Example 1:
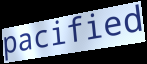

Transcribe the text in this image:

pacified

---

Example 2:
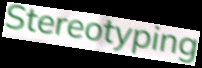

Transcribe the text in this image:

Stereotyping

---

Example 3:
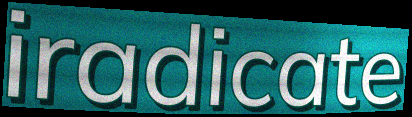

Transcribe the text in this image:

iradicate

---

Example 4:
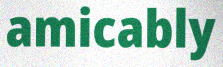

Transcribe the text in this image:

amicably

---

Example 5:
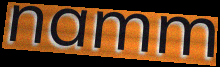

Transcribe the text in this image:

namm